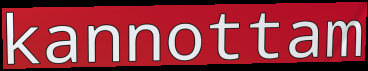
kannottam